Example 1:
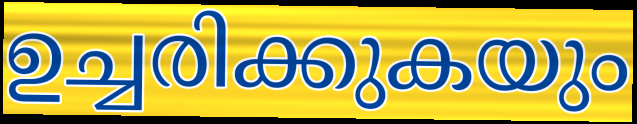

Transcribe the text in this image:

ഉച്ചരിക്കുകയും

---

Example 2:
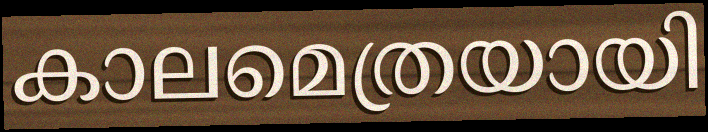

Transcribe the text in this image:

കാലമെത്രയായി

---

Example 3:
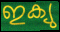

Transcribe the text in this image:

ഇക്യു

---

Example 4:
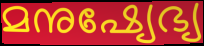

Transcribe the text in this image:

മനുഷ്യേഭ്യ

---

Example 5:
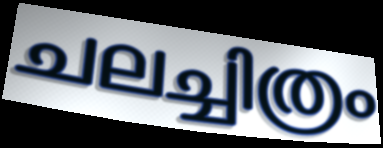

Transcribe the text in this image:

ചലച്ചിത്രം